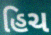
હિચ